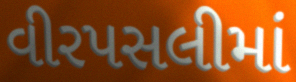
વીરપસલીમાં